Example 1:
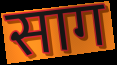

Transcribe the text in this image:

साग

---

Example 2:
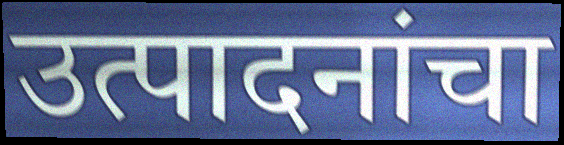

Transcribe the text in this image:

उत्पादनांचा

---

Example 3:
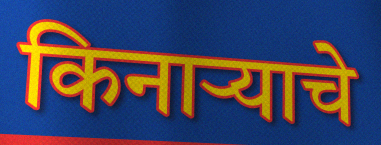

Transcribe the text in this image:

किनाऱ्याचे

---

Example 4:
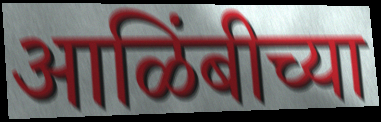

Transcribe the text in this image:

आळिंबीच्या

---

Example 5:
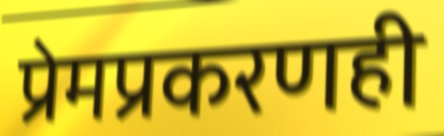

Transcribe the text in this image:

प्रेमप्रकरणही